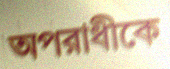
অপরাধীকে